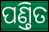
ପଣ୍ତିତ